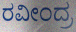
ರವೀಂದ್ರ